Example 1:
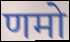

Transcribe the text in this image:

णमो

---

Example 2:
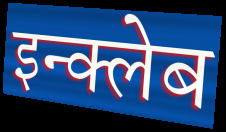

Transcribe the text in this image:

इन्क्लेब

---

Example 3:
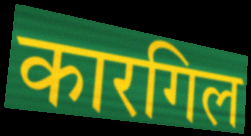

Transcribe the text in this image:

कारगिल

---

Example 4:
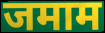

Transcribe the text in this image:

जमाम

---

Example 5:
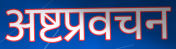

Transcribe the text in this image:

अष्टप्रवचन